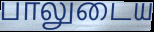
பாலுடைய